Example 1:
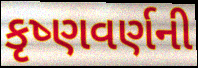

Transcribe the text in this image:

કૃષ્ણવર્ણની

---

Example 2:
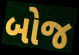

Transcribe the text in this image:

બોજ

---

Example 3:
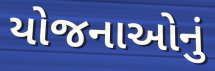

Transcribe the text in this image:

યોજનાઓનું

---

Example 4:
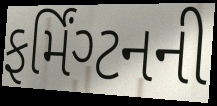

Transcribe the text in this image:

ફર્મિંગ્ટનની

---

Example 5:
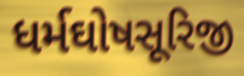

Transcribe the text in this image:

ધર્મઘોષસૂરિજી